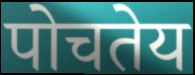
पोचतेय